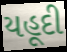
યહૂદી